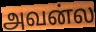
அவன்ல